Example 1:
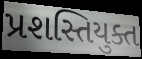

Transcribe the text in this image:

પ્રશસ્તિયુક્ત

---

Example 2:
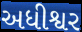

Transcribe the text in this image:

અધીશ્વર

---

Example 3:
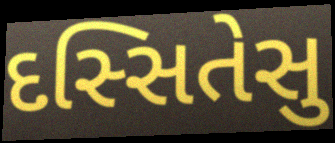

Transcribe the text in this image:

દસ્સિતેસુ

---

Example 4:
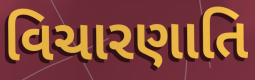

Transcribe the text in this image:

વિચારણાતિ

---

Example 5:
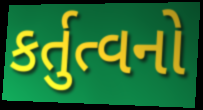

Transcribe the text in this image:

કર્તુત્વનો